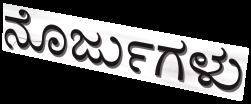
ನೊರ್ಜುಗಳು